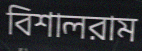
বিশালরাম